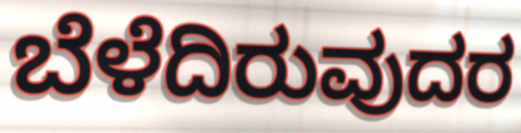
ಬೆಳೆದಿರುವುದರ